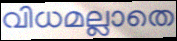
വിധമല്ലാതെ